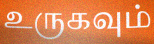
உருகவும்